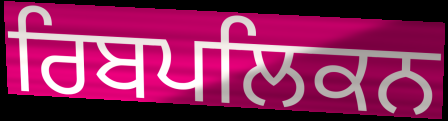
ਰਿਬਪਲਿਕਨ